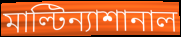
মাল্টিন্যাশানাল